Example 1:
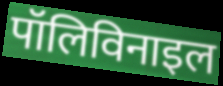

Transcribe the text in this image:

पॉलिविनाइल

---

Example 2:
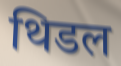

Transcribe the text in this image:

थिडल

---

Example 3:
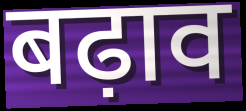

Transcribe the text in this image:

बढ़ाव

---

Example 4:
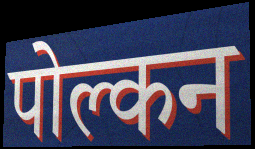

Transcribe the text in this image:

पोल्कन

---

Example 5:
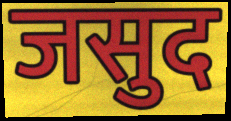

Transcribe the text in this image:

जसुद